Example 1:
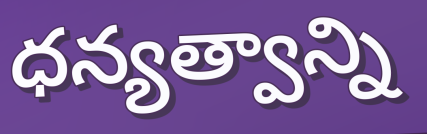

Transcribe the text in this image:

ధన్యత్వాన్ని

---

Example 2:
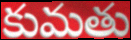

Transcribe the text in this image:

కుమతు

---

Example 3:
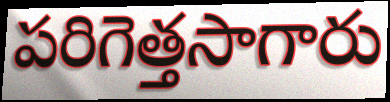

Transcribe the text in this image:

పరిగెత్తసాగారు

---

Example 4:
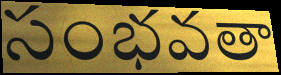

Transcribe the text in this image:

సంభవతా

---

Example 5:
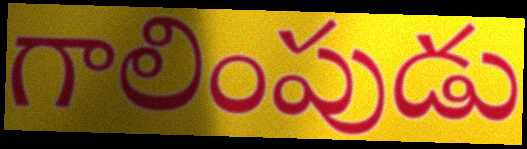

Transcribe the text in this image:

గాలింపుడు